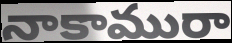
నాకామురా